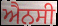
ਐਨਸੀ